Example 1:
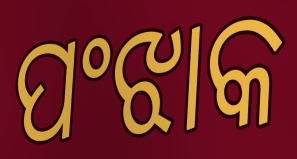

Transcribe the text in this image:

ପଂଝାକ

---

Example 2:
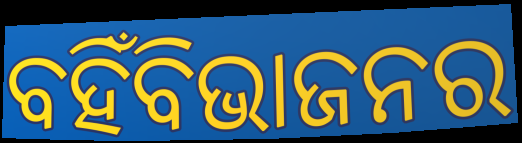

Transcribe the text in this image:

ବହିଁବିଭାଜନର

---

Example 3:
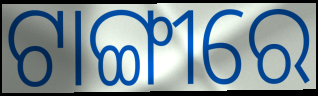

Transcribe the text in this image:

ଟାଙ୍ଗୀରେ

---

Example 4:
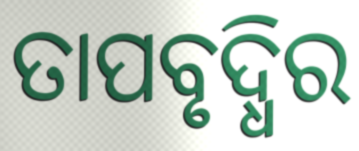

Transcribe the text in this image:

ତାପବୃଦ୍ଧିର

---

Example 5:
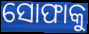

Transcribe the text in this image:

ସୋଫାକୁ